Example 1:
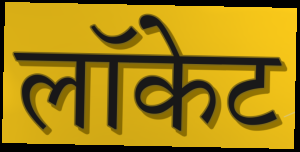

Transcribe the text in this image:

लॉकेट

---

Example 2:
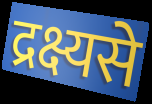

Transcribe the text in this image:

द्रक्ष्यसे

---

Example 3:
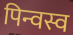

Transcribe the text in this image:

पिन्वस्व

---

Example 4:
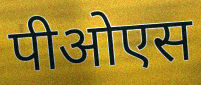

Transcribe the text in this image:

पीओएस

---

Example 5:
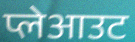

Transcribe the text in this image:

प्लेआउट